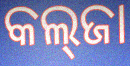
କଲ୍‌ଜା